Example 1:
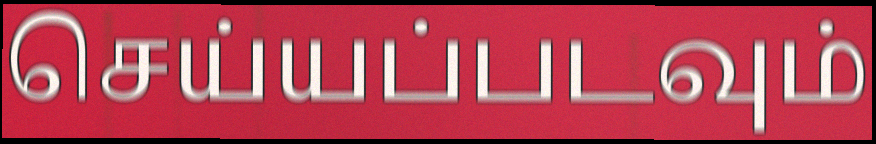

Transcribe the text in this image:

செய்யப்படவும்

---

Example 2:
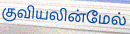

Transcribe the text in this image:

குவியலின்மேல்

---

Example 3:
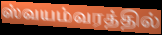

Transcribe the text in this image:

ஸ்வயம்வரத்தில்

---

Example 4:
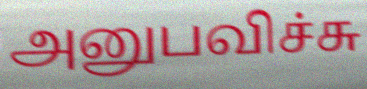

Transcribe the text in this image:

அனுபவிச்சு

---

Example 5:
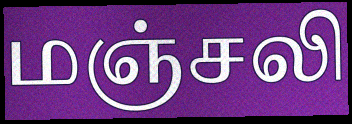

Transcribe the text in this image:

மஞ்சலி